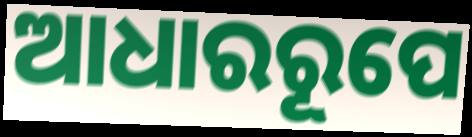
ଆଧାରରୂପେ